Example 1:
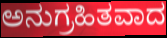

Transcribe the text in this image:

ಅನುಗ್ರಹಿತವಾದ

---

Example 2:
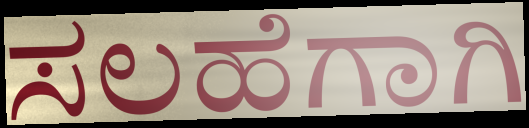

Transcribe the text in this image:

ಸಲಹೆಗಾಗಿ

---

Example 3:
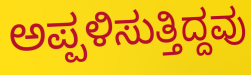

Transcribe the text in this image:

ಅಪ್ಪಳಿಸುತ್ತಿದ್ದವು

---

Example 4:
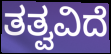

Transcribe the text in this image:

ತತ್ವವಿದೆ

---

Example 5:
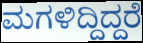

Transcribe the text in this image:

ಮಗಳಿದ್ದಿದ್ದರೆ